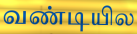
வண்டியில